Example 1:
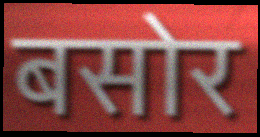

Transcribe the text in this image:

बसोर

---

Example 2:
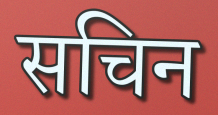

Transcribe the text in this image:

सचिन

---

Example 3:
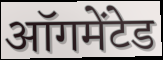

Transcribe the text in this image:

ऑगमेंटेड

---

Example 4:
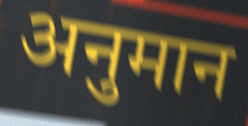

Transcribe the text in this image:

अनुमान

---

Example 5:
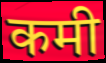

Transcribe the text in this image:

कमी